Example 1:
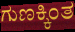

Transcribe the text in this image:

ಗುಣಕ್ಕಿಂತ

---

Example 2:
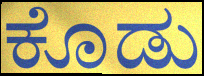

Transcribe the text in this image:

ಕೊಡು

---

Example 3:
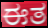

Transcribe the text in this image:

ಈತ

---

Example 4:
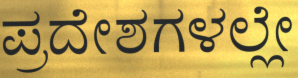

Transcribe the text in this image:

ಪ್ರದೇಶಗಳಲ್ಲೇ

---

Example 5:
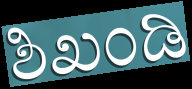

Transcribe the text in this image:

ಶಿಖಂಡಿ